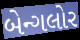
બેન્ગલોર